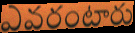
ఎవరంటారు